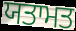
ਯਤਾਮਤ